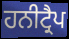
ਹਨੀਟ੍ਰੈਪ